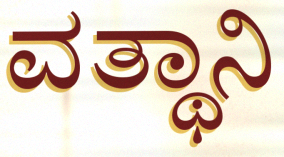
ವತ್ಥಾನಿ